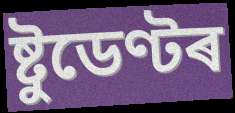
ষ্টুডেণ্টৰ